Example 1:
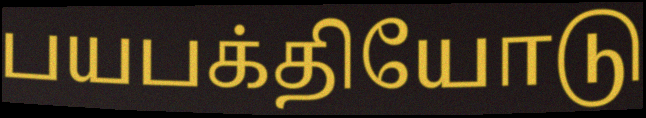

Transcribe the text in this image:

பயபக்தியோடு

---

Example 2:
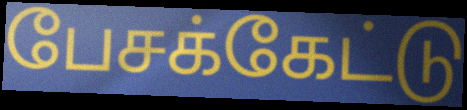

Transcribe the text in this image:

பேசக்கேட்டு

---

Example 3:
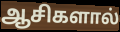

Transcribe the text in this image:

ஆசிகளால்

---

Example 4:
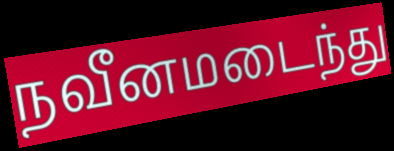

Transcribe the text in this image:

நவீனமடைந்து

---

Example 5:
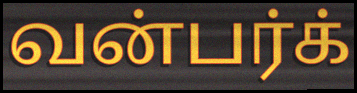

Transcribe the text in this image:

வன்பர்க்